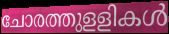
ചോരത്തുളളികൾ